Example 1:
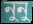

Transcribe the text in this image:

নুনু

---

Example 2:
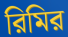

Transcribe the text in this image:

রিমির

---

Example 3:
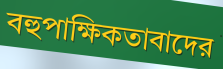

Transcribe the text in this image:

বহুপাক্ষিকতাবাদের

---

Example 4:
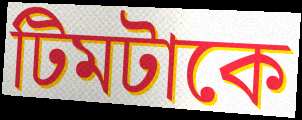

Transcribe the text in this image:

টিমটাকে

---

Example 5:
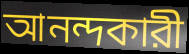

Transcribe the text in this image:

আনন্দকারী